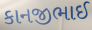
કાનજીભાઈ